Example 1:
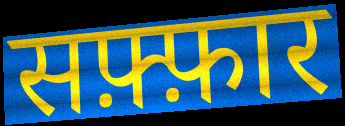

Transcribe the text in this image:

सफ़्फ़ार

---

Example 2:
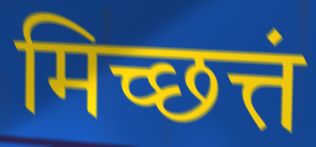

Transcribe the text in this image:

मिच्छत्तं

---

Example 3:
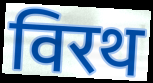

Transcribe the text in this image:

विरथ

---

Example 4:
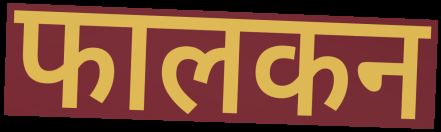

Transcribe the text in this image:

फालकन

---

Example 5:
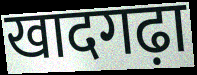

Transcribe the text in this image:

खादगढ़ा